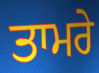
ਤਾਮਰੇ